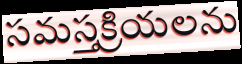
సమస్తక్రియలను